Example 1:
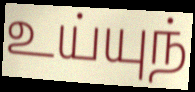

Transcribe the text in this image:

உய்யுந்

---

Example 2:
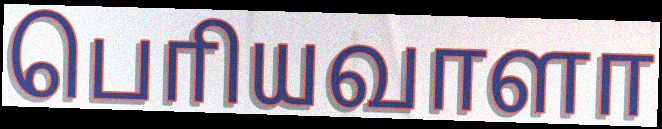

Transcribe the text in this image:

பெரியவாளா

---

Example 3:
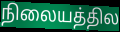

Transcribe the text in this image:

நிலையத்தில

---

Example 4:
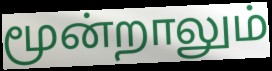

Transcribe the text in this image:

மூன்றாலும்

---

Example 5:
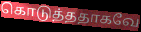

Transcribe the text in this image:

கொடுத்ததாகவே